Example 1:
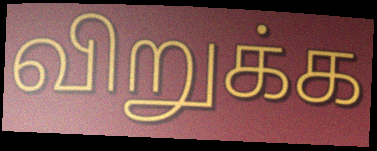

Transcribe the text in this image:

விறுக்க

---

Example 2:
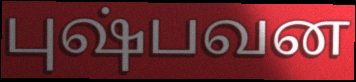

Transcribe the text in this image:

புஷ்பவன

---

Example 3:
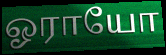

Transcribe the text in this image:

ஓராயோ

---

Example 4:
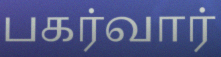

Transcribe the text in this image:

பகர்வார்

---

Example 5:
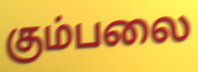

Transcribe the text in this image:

கும்பலை